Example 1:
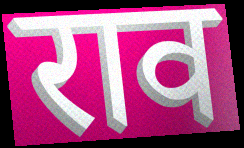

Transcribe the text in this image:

राव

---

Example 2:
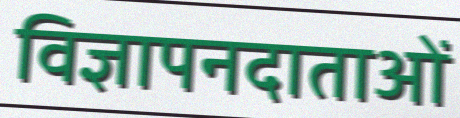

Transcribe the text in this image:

विज्ञापनदाताओं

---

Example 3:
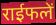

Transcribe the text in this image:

राईफलें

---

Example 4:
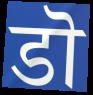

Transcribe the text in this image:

डॊ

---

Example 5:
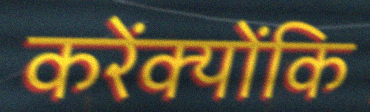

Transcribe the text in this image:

करेंक्योंकि